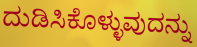
ದುಡಿಸಿಕೊಳ್ಳುವುದನ್ನು